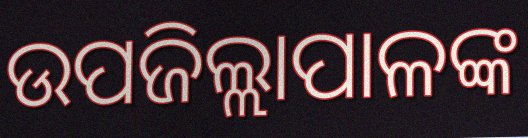
ଉପଜିଲ୍ଲାପାଳଙ୍କ